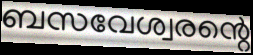
ബസവേശ്വരന്റെ